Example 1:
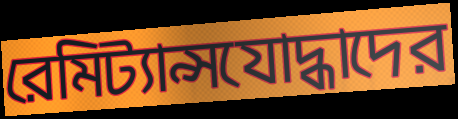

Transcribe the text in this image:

রেমিট্যান্সযোদ্ধাদের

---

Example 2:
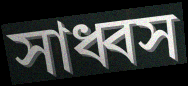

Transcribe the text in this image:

সাধ্বস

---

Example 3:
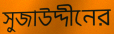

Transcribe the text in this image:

সুজাউদ্দীনের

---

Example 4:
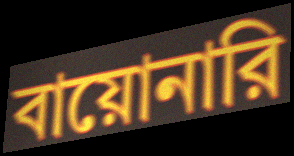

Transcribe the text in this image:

বায়োনারি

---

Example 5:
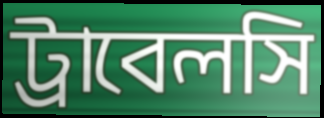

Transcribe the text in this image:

ট্রাবেলসি